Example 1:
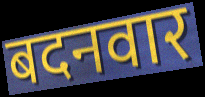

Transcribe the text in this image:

बदनवार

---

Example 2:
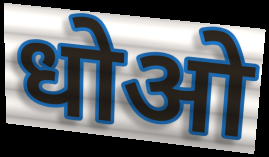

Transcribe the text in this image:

धोओ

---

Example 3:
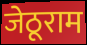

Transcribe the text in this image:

जेठूराम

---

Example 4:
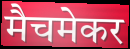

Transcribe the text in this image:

मैचमेकर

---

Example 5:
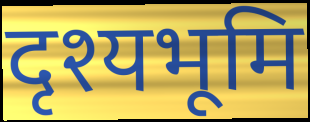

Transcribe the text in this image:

दृश्यभूमि